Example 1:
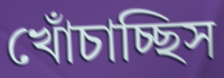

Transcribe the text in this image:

খোঁচাচ্ছিস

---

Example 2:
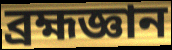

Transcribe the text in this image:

ব্রহ্মজ্ঞান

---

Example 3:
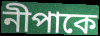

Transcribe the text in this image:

নীপাকে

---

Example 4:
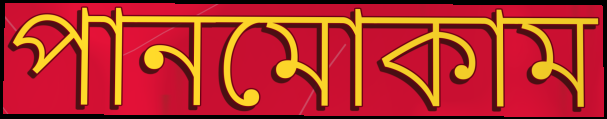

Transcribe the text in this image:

পানমোকাম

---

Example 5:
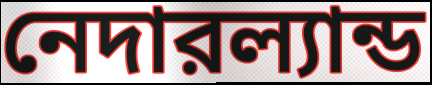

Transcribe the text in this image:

নেদারল্যান্ড